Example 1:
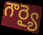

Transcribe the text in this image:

గౌర్యై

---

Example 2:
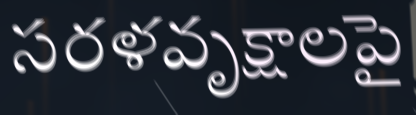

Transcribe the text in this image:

సరళవృక్షాలపై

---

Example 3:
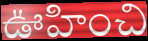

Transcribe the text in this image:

ఊహించి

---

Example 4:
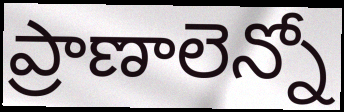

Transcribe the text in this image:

ప్రాణాలెన్నో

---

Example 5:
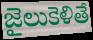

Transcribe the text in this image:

జైలుకెళితే